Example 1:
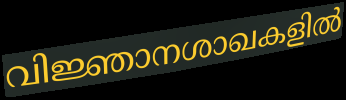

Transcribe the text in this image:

വിജ്ഞാനശാഖകളിൽ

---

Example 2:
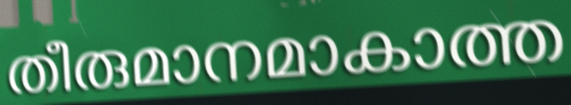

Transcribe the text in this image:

തീരുമാനമാകാത്ത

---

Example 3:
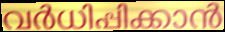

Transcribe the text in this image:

വർധിപ്പിക്കാൻ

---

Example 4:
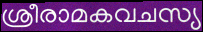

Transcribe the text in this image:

ശ്രീരാമകവചസ്യ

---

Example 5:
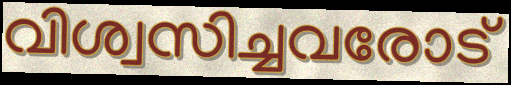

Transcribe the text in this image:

വിശ്വസിച്ചവരോട്